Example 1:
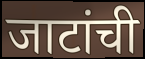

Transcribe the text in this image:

जाटांची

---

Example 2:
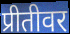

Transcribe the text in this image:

प्रीतीवर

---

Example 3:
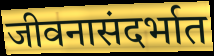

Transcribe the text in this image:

जीवनासंदर्भात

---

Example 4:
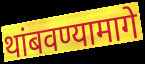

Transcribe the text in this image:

थांबवण्यामागे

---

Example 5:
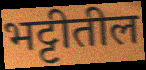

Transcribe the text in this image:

भट्टीतील